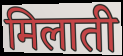
मिलाती